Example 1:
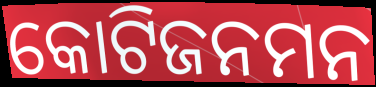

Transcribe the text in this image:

କୋଟିଜନମନ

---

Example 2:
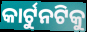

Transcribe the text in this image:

କାର୍ଟୁନଟିକୁ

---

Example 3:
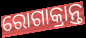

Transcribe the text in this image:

ରୋଗାକ୍ରାନ୍ତ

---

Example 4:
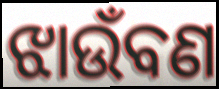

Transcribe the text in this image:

ଝାଉଁବଣ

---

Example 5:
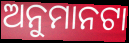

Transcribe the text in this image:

ଅନୁମାନଟା